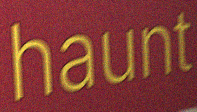
haunt